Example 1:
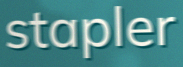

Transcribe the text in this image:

stapler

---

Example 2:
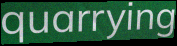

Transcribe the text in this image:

quarrying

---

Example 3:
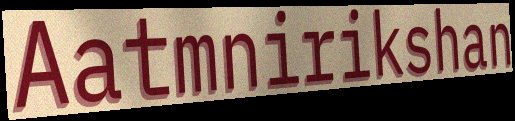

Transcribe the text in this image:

Aatmnirikshan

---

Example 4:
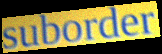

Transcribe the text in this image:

suborder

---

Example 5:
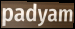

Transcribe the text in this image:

padyam